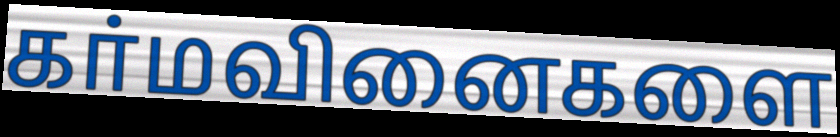
கர்மவினைகளை